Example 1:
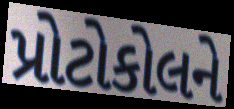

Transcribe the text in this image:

પ્રોટોકોલને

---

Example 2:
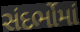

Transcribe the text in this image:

સંદર્ભોમાં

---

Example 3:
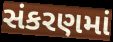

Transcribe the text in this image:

સંકરણમાં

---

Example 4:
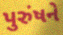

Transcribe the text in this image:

પુરુંષને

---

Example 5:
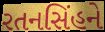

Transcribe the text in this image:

રતનસિંહને